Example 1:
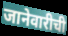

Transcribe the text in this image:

जानेवारीची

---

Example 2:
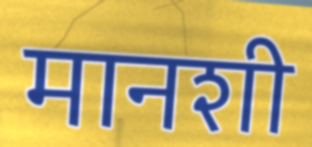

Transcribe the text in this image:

मानशी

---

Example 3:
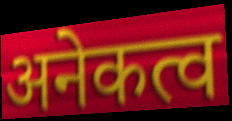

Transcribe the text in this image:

अनेकत्व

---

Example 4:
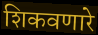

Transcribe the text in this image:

शिकवणारे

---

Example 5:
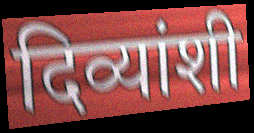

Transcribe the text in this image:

दिव्यांशी